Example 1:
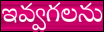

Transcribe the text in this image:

ఇవ్వగలను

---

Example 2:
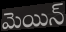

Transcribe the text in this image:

మెయిన్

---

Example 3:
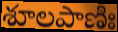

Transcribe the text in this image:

శూలపాణిః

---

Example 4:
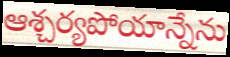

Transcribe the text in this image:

ఆశ్చర్యపోయాన్నేను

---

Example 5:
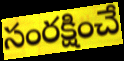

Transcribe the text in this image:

సంరక్షించే